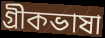
গ্রীকভাষা